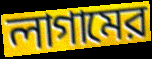
লাগামের